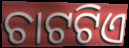
ଚାଟଟିଏ